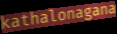
kathalonagana